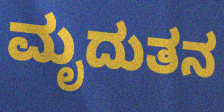
ಮೃದುತನ